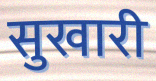
सुखारी